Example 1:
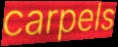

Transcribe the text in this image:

carpels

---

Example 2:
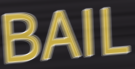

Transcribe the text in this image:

BAIL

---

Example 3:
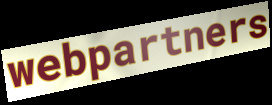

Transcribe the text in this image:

webpartners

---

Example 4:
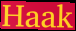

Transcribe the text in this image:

Haak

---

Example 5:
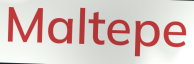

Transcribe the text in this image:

Maltepe